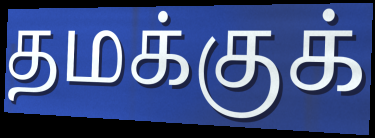
தமக்குக்